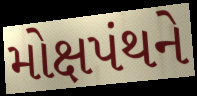
મોક્ષપંથને